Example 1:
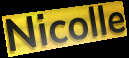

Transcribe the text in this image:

Nicolle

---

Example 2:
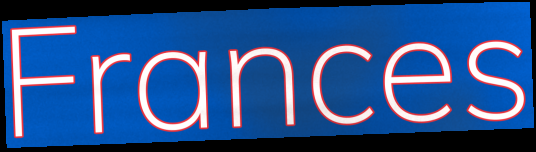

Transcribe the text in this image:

Frances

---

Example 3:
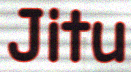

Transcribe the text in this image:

Jitu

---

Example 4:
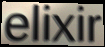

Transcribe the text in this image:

elixir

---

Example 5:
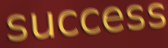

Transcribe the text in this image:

success